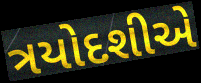
ત્રયોદશીએ